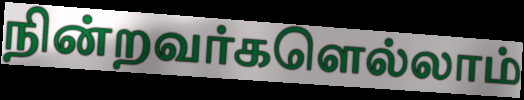
நின்றவர்களெல்லாம்